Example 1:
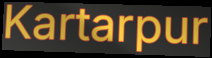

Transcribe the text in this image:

Kartarpur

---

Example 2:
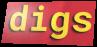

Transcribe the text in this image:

digs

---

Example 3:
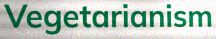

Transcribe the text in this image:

Vegetarianism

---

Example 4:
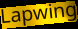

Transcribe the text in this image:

Lapwing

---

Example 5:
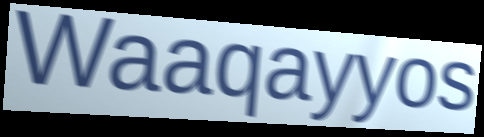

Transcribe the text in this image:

Waaqayyos